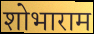
शोभाराम